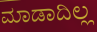
ಮಾಡಾದಿಲ್ಲ